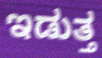
ಇಡುತ್ತ